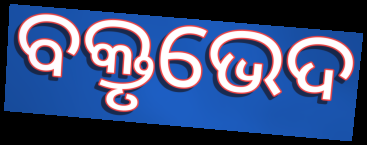
ବକ୍ତୃଭେଦ